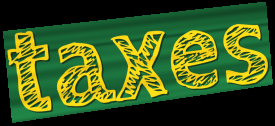
taxes